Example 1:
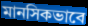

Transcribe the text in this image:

মানসিকভাবে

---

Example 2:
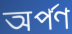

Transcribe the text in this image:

অর্পণ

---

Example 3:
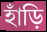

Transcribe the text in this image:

হাঁড়ি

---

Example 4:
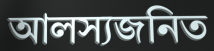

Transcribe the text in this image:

আলস্যজনিত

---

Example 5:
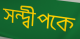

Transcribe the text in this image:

সন্দ্বীপকে